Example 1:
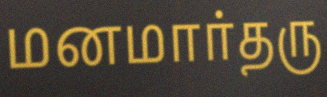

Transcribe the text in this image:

மனமார்தரு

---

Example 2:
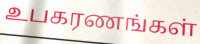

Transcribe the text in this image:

உபகரணங்கள்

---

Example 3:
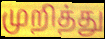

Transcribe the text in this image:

முறித்து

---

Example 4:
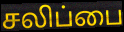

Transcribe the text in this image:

சலிப்பை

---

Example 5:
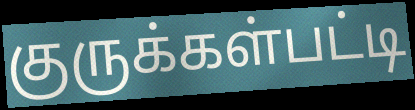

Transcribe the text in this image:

குருக்கள்பட்டி